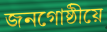
জনগোষ্ঠীয়ে